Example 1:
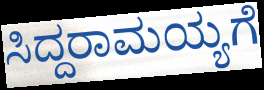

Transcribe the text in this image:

ಸಿದ್ದರಾಮಯ್ಯಗೆ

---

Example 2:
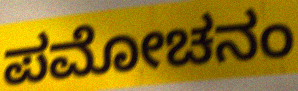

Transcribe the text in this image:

ಪಮೋಚನಂ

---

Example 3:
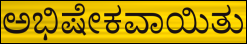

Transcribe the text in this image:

ಅಭಿಷೇಕವಾಯಿತು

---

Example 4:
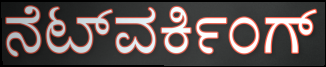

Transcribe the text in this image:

ನೆಟ್‌ವರ್ಕಿಂಗ್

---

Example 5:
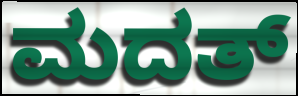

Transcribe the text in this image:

ಮದತ್